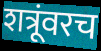
शत्रूंवरच